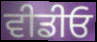
ਵੀਡੀਓ